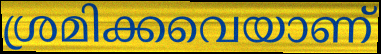
ശ്രമിക്കവെയാണ്